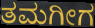
ತಮಗೀಗ